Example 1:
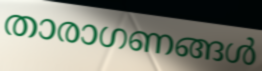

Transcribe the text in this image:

താരാഗണങ്ങൾ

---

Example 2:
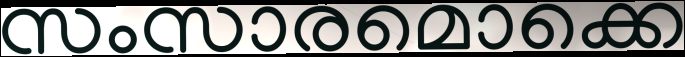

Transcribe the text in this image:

സംസാരമൊക്കെ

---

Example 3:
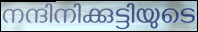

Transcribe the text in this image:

നന്ദിനിക്കുട്ടിയുടെ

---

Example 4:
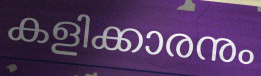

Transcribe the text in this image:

കളിക്കാരനും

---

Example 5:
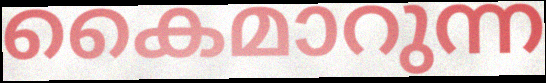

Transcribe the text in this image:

കൈമാറുന്ന